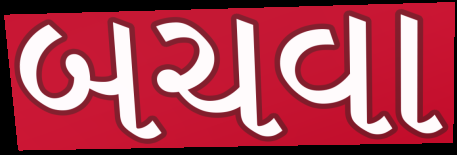
બચવા